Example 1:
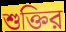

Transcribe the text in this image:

শুক্তির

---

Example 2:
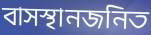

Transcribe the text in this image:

বাসস্থানজনিত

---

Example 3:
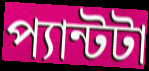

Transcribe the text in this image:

প্যান্টটা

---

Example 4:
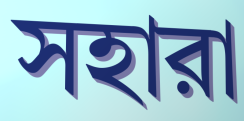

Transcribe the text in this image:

সহারা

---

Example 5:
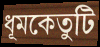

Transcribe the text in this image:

ধূমকেতুটি